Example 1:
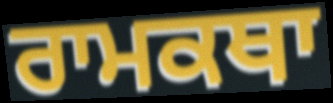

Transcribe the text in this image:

ਰਾਮਕਥਾ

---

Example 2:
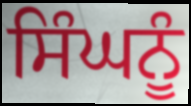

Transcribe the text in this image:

ਸਿੰਘਨੂੰ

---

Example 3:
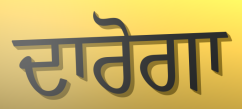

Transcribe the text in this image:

ਦਾਰੋਗਾ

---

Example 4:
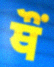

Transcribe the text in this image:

ਥੌਂ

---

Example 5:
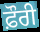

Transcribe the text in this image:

ਫ਼ੌਰੀ